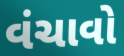
વંચાવો